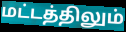
மட்டத்திலும்